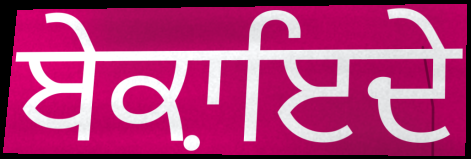
ਬੇਕ਼ਾਇਦੇ